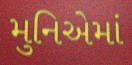
મુનિએમાં